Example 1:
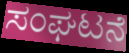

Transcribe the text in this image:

ಸಂಘಟನೆ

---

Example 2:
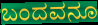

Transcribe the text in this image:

ಬಂದವನೂ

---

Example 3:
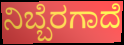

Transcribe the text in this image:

ನಿಬ್ಬೆರಗಾದೆ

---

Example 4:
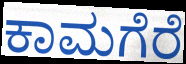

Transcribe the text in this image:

ಕಾಮಗೆರೆ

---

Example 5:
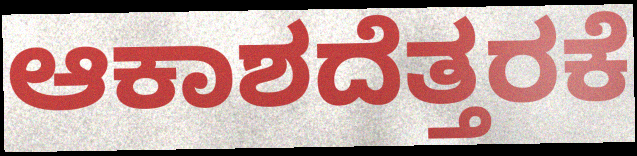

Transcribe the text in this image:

ಆಕಾಶದೆತ್ತರಕೆ